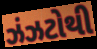
ઝંઝટોથી